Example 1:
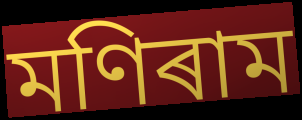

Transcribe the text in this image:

মণিৰাম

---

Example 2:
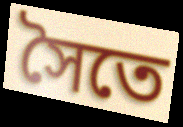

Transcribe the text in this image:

সৈতে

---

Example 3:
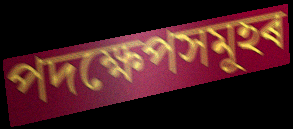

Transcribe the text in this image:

পদক্ষেপসমূহৰ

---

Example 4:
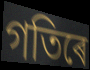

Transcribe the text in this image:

গতিৰে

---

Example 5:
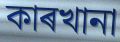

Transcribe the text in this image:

কাৰখানা